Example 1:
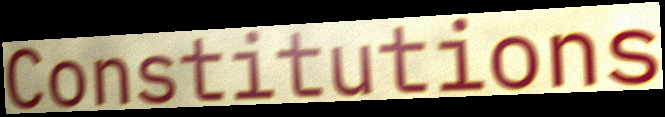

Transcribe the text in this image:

Constitutions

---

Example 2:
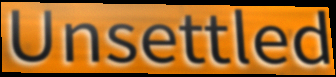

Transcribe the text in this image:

Unsettled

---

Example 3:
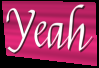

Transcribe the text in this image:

Yeah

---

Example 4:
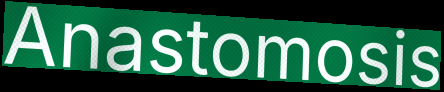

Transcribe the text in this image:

Anastomosis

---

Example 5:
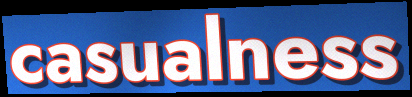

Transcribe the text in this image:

casualness